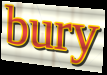
bury